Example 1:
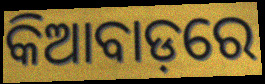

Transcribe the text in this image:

କିଆବାଡ଼ରେ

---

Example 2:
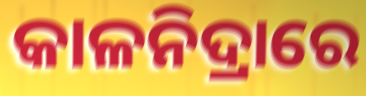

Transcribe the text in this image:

କାଳନିଦ୍ରାରେ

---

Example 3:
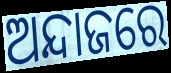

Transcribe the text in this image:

ଅନ୍ଦାଜରେ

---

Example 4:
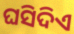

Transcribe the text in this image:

ଘସିଦିଏ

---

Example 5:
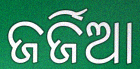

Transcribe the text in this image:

ଜର୍ଜିଆ